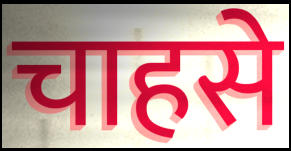
चाहसे